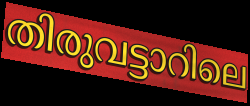
തിരുവട്ടാറിലെ